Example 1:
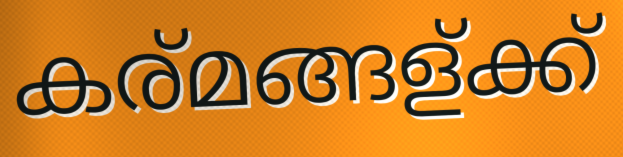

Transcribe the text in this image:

കര്മങ്ങള്ക്ക്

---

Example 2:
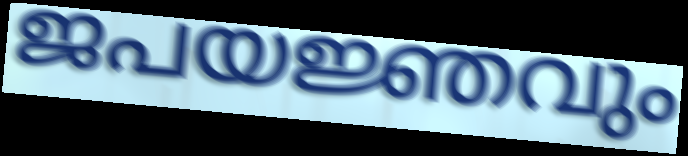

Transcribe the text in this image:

ജപയജ്ഞവും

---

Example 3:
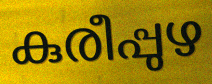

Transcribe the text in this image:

കുരീപ്പുഴ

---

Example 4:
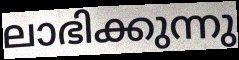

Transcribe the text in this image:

ലാഭിക്കുന്നു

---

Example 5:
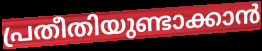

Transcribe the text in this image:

പ്രതീതിയുണ്ടാക്കാൻ